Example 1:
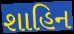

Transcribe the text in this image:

શાહિન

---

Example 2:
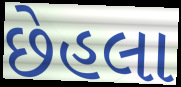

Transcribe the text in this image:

છેહલા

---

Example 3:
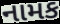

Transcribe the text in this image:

નામક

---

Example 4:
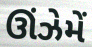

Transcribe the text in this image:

ઊંઝેમેં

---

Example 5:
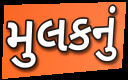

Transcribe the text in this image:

મુલકનું